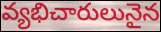
వ్యభిచారులునైన